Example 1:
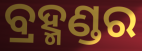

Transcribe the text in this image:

ବ୍ରହ୍ମଣ୍ଡର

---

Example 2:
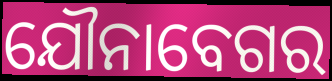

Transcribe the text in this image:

ଯୌନାବେଗର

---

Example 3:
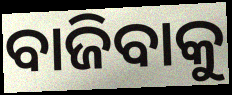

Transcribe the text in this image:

ବାଜିବାକୁ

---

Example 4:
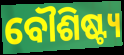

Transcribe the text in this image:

ବୌଶିଷ୍ଟ୍ୟ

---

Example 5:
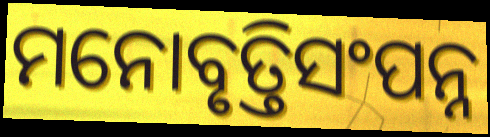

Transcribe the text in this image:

ମନୋବୃତ୍ତିସଂପନ୍ନ